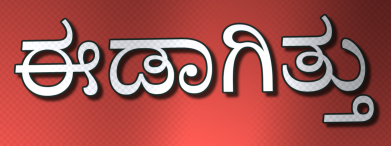
ಈಡಾಗಿತ್ತು